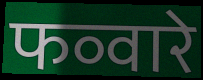
फव्‍वारे